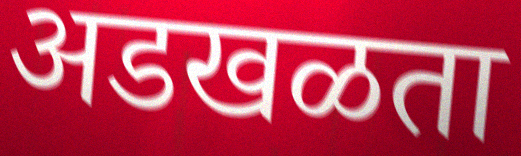
अडखळता